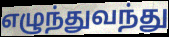
எழுந்துவந்து